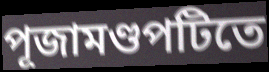
পূজামণ্ডপটিতে